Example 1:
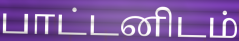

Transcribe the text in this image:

பாட்டனிடம்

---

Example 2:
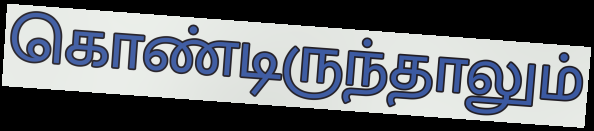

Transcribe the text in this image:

கொண்டிருந்தாலும்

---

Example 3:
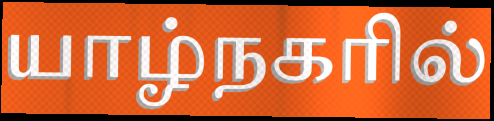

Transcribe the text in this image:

யாழ்நகரில்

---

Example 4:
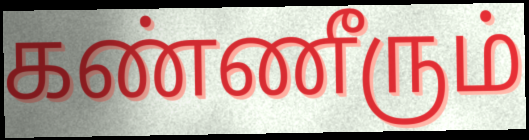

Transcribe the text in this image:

கண்ணீரும்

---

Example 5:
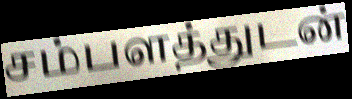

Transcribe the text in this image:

சம்பளத்துடன்